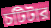
চটিটার